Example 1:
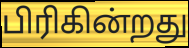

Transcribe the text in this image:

பிரிகின்றது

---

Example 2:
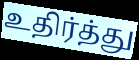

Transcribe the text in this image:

உதிர்த்து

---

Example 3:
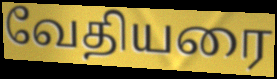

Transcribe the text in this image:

வேதியரை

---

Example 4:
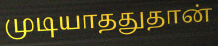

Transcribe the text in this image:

முடியாததுதான்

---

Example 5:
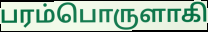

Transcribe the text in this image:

பரம்பொருளாகி